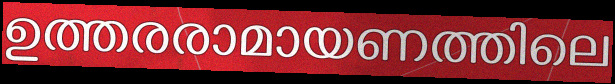
ഉത്തരരാമായണത്തിലെ